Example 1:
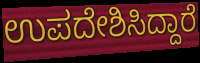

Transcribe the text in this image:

ಉಪದೇಶಿಸಿದ್ದಾರೆ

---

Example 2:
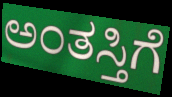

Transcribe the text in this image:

ಅಂತಸ್ತಿಗೆ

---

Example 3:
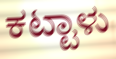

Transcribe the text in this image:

ಕಟ್ಟಾಳು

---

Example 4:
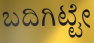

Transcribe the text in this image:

ಬದಿಗಿಟ್ಟೇ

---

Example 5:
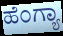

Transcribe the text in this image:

ಹೆಂಗ್ಯಾ